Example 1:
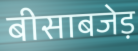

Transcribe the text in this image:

बीसाबजेड़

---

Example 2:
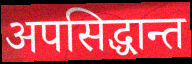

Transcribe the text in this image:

अपसिद्धान्त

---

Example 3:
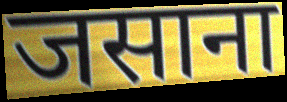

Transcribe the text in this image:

जसाना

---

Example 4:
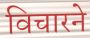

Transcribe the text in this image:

विचारने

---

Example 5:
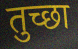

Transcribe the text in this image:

तुच्छा